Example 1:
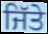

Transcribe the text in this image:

ਜਿੱਤੇ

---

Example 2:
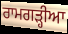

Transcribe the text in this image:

ਰਾਮਗੜ੍ਹੀਆ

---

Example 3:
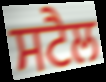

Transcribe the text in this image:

ਸਟੈਲ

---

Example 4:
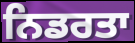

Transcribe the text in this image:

ਨਿਡਰਤਾ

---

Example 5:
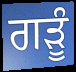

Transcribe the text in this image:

ਗੜੂੰ